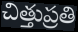
చిత్తుప్రతి